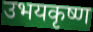
उभयकृष्ण